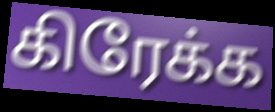
கிரேக்க